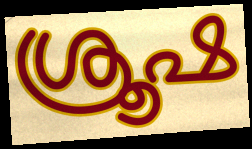
ശ്രൂഷ